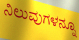
ನಿಲುವುಗಳನ್ನೂ